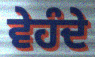
ਵੇਹੰਦੇ